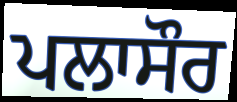
ਪਲਾਸੌਰ